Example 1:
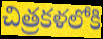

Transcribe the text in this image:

చిత్రకళలోకి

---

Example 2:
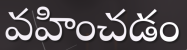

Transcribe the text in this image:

వహించడం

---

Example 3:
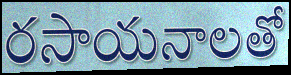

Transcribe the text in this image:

రసాయనాలతో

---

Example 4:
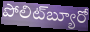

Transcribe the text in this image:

పోలిట్‌బ్యూరో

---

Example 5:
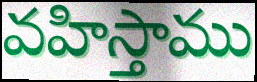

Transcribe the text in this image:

వహిస్తాము